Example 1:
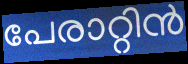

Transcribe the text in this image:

പേരാറ്റിൻ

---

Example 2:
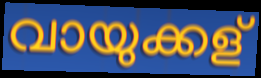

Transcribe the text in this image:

വായുക്കള്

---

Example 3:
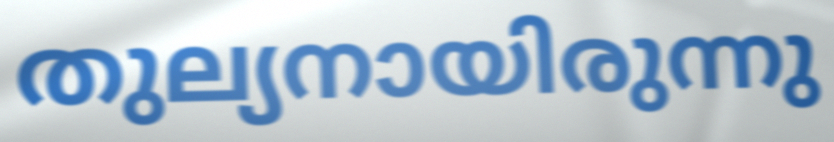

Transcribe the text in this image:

തുല്യനായിരുന്നു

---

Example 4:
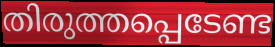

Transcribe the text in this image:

തിരുത്തപ്പെടേണ്ട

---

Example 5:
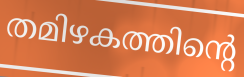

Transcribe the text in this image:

തമിഴകത്തിന്റെ